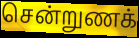
சென்றுணக்